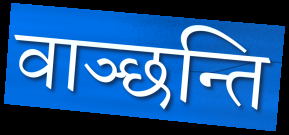
वाञ्छन्ति